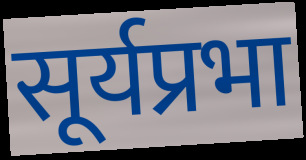
सूर्यप्रभा